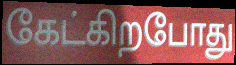
கேட்கிறபோது